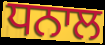
ਧਨਾਲ